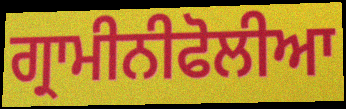
ਗ੍ਰਾਮੀਨੀਫੋਲੀਆ